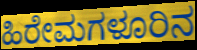
ಹಿರೇಮಗಳೂರಿನ